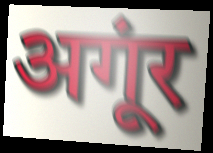
अगूंर